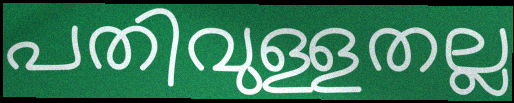
പതിവുള്ളതല്ല